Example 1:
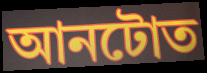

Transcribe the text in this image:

আনটোত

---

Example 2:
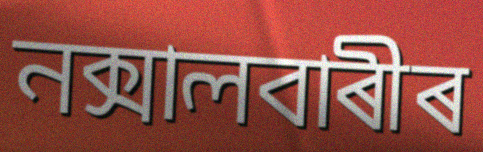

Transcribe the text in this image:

নক্সালবাৰীৰ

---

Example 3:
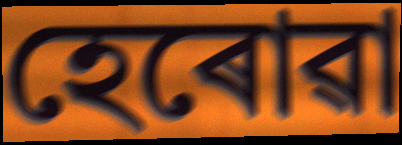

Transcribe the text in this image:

হেৰোৱা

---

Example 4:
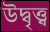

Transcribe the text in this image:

উদ্বৃত্ত্ব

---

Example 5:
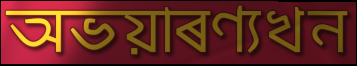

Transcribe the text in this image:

অভয়াৰণ্যখন